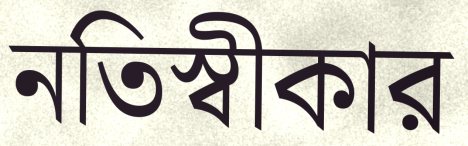
নতিস্বীকার